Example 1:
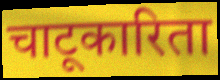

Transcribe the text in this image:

चाटूकारिता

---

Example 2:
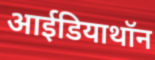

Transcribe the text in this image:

आईडियाथॉन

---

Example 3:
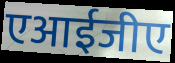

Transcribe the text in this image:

एआईजीए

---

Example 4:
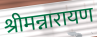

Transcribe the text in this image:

श्रीमन्नारायण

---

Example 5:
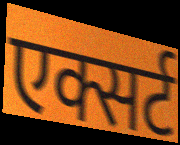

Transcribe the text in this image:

एक्सर्ट